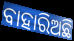
ବାହାରିଅଛି